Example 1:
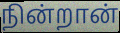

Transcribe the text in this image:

நின்றான்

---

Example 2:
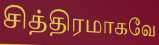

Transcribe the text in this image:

சித்திரமாகவே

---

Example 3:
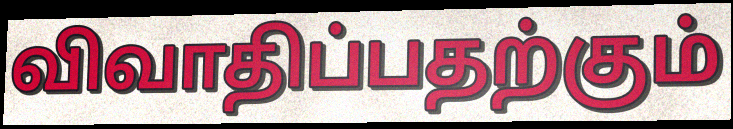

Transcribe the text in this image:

விவாதிப்பதற்கும்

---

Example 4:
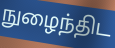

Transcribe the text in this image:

நுழைந்திட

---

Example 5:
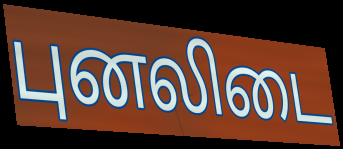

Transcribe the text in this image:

புனலிடை